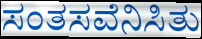
ಸಂತಸವೆನಿಸಿತು